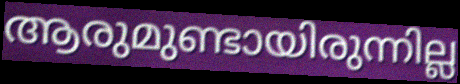
ആരുമുണ്ടായിരുന്നില്ല